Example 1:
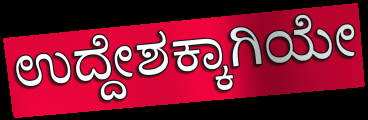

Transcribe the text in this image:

ಉದ್ದೇಶಕ್ಕಾಗಿಯೇ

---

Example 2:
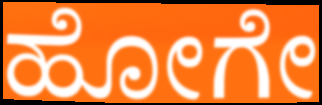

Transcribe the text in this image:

ಹೋಗೇ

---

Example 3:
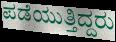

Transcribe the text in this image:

ಪಡೆಯುತ್ತಿದ್ದರು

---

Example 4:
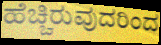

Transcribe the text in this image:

ಹೆಚ್ಚಿರುವುದರಿಂದ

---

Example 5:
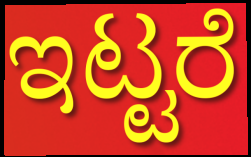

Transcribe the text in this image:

ಇಟ್ಟರೆ